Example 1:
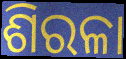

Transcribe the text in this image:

ଶିରଳା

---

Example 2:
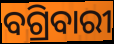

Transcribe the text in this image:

ବଗ୍ରିବାରୀ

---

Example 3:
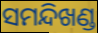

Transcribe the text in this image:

ସମନ୍ଦିଖଣ୍ଡ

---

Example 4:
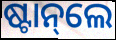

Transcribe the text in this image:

ଷ୍ଟାନ୍‌ଲେ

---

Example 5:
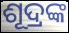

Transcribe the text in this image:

ଶୂଦ୍ରଙ୍କ